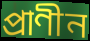
প্রাণীন